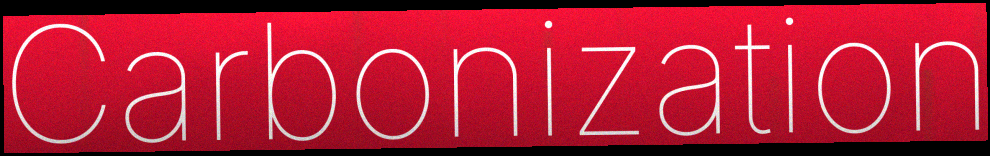
Carbonization